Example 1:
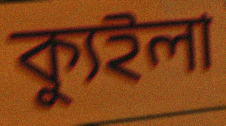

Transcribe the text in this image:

ক্যুইলা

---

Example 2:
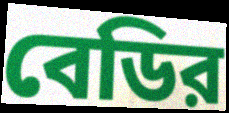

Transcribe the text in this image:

বেডির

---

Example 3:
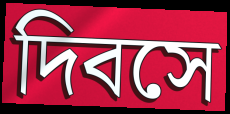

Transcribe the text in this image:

দিবসে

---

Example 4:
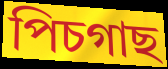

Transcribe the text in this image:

পিচগাছ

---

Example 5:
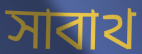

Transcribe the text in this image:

সাবাথ